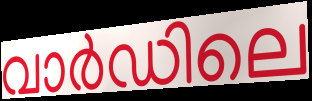
വാർഡിലെ